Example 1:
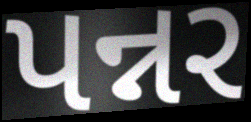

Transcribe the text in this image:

પન્નર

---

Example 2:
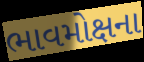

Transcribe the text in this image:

ભાવમોક્ષના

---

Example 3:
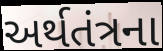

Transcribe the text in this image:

અર્થતંત્રના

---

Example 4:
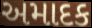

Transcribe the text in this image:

અમાદક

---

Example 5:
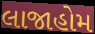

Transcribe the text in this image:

લાજાહોમ